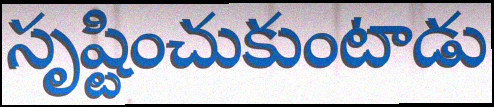
సృష్టించుకుంటాడు